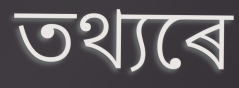
তথ্যৰে